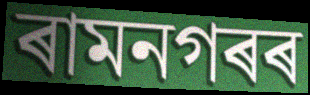
ৰামনগৰৰ